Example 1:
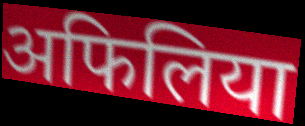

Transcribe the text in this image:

अफिलिया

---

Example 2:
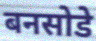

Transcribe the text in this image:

बनसोडे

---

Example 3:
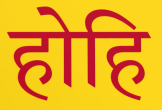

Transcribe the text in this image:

होहि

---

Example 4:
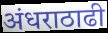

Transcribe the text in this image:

अंधराठाढी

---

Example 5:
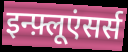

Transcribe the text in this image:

इन्फ़्लूएंसर्स